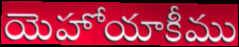
యెహోయాకీము